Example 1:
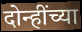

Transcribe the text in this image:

दोन्हींच्या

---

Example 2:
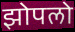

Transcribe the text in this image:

झोपलो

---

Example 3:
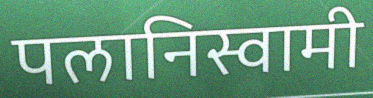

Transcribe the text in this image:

पलानिस्वामी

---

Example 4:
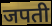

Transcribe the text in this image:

जपती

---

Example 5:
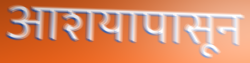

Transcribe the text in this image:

आशयापासून